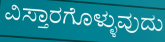
ವಿಸ್ತಾರಗೊಳ್ಳುವುದು